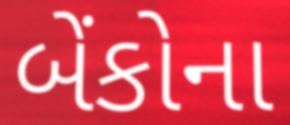
બેંકોના